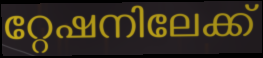
റ്റേഷനിലേക്ക്